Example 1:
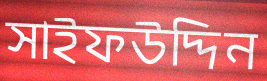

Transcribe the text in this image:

সাইফউদ্দিন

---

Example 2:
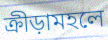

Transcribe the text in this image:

ক্রীড়ামহলে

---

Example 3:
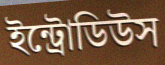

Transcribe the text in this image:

ইন্ট্রোডিউস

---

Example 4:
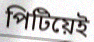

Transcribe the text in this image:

পিটিয়েই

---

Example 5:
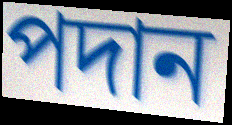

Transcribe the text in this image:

পদান